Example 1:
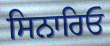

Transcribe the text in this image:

ਸਿਨਾਰਿਓ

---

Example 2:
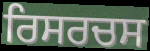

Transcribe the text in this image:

ਰਿਸਰਚਸ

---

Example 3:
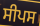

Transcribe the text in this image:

ਸੀਪਸ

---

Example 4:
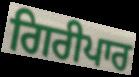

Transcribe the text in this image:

ਗਿਰੀਪਾਰ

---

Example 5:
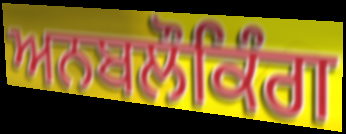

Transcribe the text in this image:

ਅਨਬਲੌਕਿੰਗ